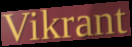
Vikrant